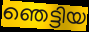
ഞെട്ടിയ